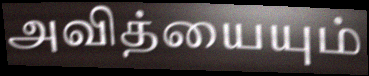
அவித்யையும்